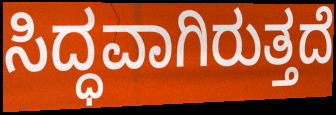
ಸಿದ್ಧವಾಗಿರುತ್ತದೆ